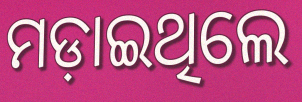
ମଡ଼ାଇଥିଲେ